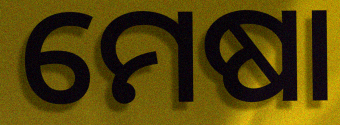
ମେଷା